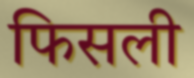
फिसली